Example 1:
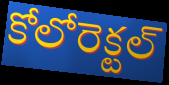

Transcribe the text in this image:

కోలోరెక్టల్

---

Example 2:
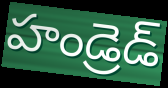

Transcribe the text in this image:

హండ్రెడ్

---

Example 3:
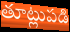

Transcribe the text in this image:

తూట్లుపడి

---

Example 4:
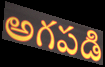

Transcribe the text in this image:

అగపడి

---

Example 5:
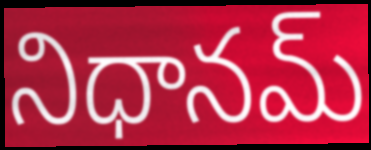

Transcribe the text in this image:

నిధానమ్